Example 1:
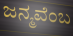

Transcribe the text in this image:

ಜನ್ಮವೆಂಬ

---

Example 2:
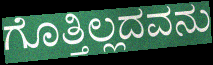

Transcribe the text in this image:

ಗೊತ್ತಿಲ್ಲದವನು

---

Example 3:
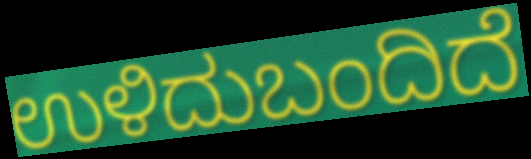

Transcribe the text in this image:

ಉಳಿದುಬಂದಿದೆ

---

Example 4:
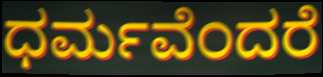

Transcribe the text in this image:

ಧರ್ಮವೆಂದರೆ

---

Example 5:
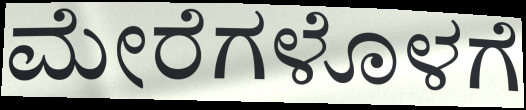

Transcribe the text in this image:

ಮೇರೆಗಳೊಳಗೆ